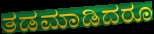
ತಡಮಾಡಿದರೂ